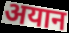
अयान